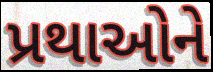
પ્રથાઓને